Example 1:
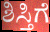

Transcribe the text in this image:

ಶಿಸ್ತಿಗೆ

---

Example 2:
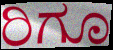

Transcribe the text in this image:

ರಿಗೂ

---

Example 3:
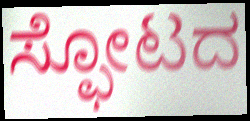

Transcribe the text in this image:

ಸ್ಫೋಟದ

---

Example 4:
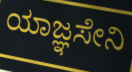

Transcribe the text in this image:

ಯಾಜ್ಞಸೇನಿ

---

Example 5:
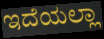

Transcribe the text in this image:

ಇದೆಯಲ್ಲಾ